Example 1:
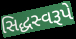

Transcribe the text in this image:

સિદ્ધસ્વરૂપે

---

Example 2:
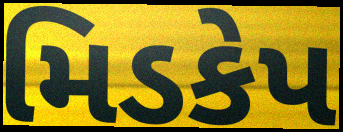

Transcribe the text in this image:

મિડકેપ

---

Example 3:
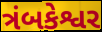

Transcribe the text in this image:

ત્રંબકેશ્વર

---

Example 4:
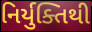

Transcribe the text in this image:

નિર્યુક્તિથી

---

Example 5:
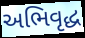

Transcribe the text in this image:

અભિવૃદ્ધ